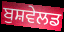
ਬੁਸ਼ਵੇਲਡ